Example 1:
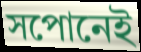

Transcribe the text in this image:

সপোনেই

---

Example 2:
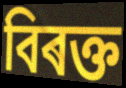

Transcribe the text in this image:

বিৰক্ত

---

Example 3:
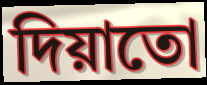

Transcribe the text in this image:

দিয়াতো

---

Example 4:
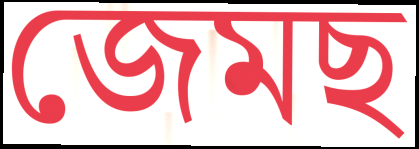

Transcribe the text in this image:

জেমছ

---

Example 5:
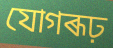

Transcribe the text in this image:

যোগৰূঢ়